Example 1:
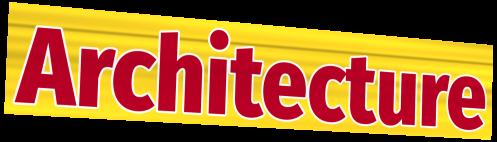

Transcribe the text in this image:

Architecture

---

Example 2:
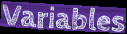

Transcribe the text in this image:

Variables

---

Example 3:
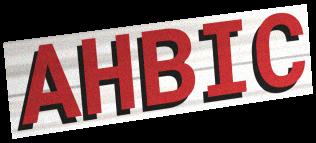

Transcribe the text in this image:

AHBIC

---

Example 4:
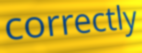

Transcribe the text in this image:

correctly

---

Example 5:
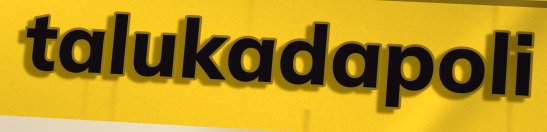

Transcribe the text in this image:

talukadapoli